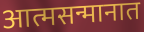
आत्मसन्मानात